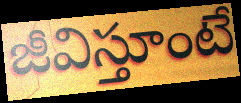
జీవిస్తూంటే